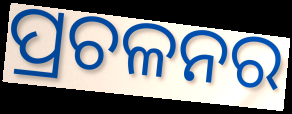
ପ୍ରଚଳନର